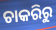
ଚାକରିରୁ